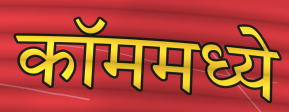
कॉममध्ये